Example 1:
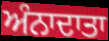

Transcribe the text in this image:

ਅੰਨਾਦਾਤਾ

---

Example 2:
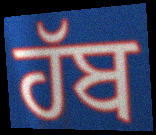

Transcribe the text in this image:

ਹੱਬ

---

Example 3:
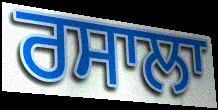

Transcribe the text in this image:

ਰਸਾਲਾ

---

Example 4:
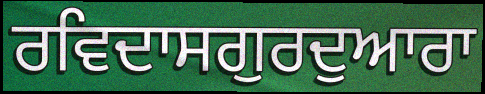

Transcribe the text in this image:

ਰਵਿਦਾਸਗੁਰਦੁਆਰਾ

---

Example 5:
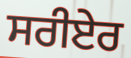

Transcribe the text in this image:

ਸਰੀਏਰ